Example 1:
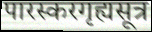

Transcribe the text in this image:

पारस्करगृह्यसूत्र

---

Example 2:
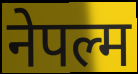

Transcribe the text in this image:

नेपल्म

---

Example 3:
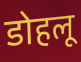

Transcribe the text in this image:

डोहलू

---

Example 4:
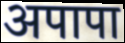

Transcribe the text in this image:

अपापा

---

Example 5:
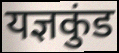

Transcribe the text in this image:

यज्ञकुंड